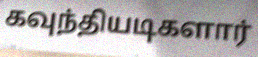
கவுந்தியடிகளார்